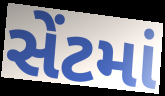
સેંટમાં